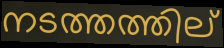
നടത്തത്തില്